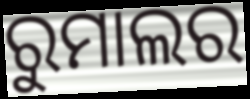
ରୁମାଲର